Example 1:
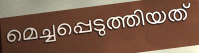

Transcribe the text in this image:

മെച്ചപ്പെടുത്തിയത്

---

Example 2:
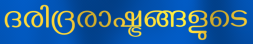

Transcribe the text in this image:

ദരിദ്രരാഷ്ട്രങ്ങളുടെ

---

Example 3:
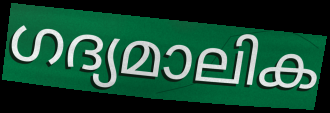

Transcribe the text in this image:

ഗദ്യമാലിക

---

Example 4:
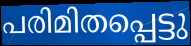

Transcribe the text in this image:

പരിമിതപ്പെട്ടു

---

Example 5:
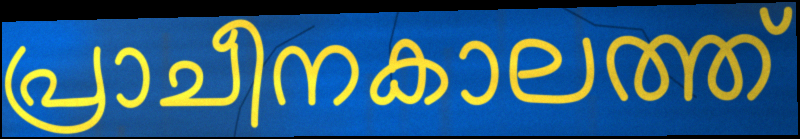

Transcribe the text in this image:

പ്രാചീനകാലത്ത്